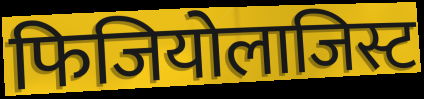
फिजियोलाजिस्ट